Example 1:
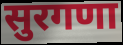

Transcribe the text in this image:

सुरगणा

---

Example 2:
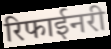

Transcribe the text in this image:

रिफाईनरी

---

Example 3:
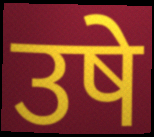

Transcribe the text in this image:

उषे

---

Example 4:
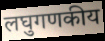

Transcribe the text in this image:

लघुगणकीय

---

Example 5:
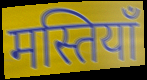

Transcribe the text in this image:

मस्तियाँ